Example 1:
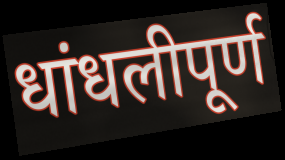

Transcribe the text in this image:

धांधलीपूर्ण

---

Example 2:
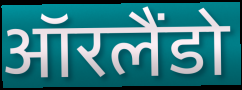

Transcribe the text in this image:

ऑरलैंडो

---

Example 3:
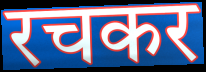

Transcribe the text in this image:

रचकर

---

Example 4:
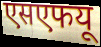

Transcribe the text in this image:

एसएफयू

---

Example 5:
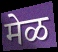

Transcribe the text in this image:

मेळ